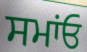
ਸਮਾਂਓ